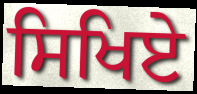
ਸਿਖਿਏ